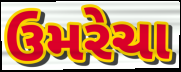
ઉમરેચા